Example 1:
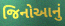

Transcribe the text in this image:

જિનોઆનું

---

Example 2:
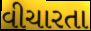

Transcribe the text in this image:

વીચારતા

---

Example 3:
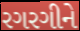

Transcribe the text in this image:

રગરગીને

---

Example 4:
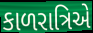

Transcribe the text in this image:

કાળરાત્રિએ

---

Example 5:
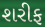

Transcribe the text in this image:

શરીફ